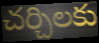
చర్చిలకు